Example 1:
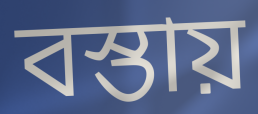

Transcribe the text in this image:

বস্তায়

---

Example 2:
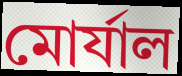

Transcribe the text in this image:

মোর্যাল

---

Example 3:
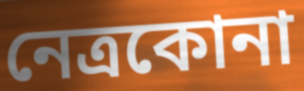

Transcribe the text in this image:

নেত্রকোনা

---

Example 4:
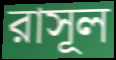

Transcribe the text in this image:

রাসূল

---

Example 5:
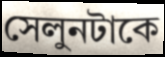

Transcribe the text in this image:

সেলুনটাকে